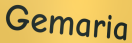
Gemaria